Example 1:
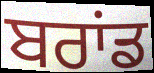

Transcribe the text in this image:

ਬਰਾਂਡ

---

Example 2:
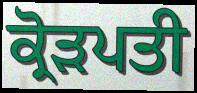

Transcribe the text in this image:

ਕ੍ਰੋੜਪਤੀ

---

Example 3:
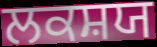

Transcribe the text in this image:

ਲਕਸ਼ਯ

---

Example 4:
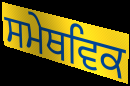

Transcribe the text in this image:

ਸਮੇਥਵਿਕ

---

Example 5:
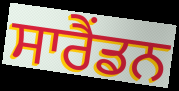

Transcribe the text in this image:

ਸਾਰੈਂਡਨ